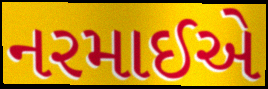
નરમાઈએ